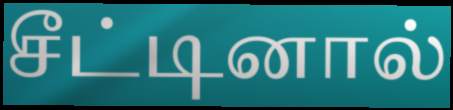
சீட்டினால்